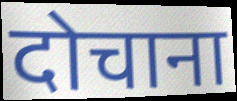
दोचाना